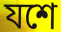
যশে